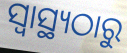
ସ୍ବାସ୍ଥ୍ୟଠାରୁ